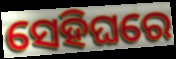
ସେହିଘରେ